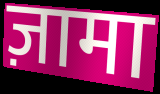
ज़ामा